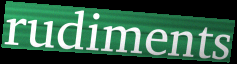
rudiments